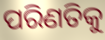
ପରିଣତିକୁ